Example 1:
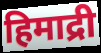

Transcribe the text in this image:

हिमाद्री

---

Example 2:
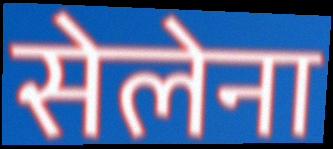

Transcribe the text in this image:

सेलेना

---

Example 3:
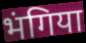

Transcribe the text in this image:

भंगिया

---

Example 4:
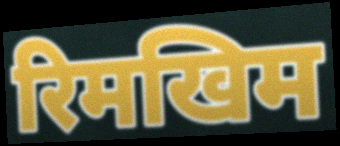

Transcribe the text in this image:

रिमखिम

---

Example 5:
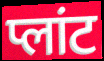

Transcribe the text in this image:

प्लांट